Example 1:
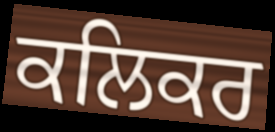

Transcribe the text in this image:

ਕਲਿਕਰ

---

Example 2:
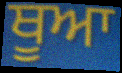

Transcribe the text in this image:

ਥੂਆ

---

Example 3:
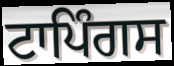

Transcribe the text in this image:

ਟਾਪਿੰਗਸ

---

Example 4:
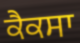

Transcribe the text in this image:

ਕੈਕਸਾ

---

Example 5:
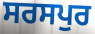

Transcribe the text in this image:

ਸਰਸਪੁਰ